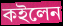
কইলেন